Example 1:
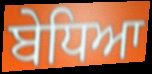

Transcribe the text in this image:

ਬੇਧਿਆ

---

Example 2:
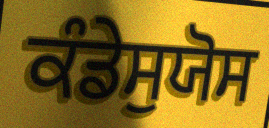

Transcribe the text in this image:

ਕੰਡੇਸੁਯੋਸ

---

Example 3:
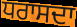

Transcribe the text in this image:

ਧਰਾਸਦਾ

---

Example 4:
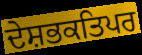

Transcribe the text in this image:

ਦੇਸ਼ਭਕਤਿਪਰ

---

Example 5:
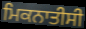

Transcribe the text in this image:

ਮਿਕਨਾਤੀਸੀ